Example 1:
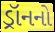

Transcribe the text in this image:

ડ્રૉનનો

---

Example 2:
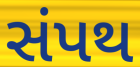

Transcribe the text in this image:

સંપથ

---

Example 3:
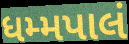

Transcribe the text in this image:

ધમ્મપાલં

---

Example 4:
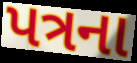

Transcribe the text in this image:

પત્રના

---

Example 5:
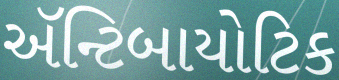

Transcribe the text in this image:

ઍન્ટિબાયોટિક